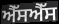
ਐੱਸਐੱਸ